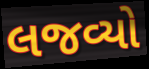
લજવ્યો